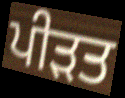
ਪੀਡ਼ਤ